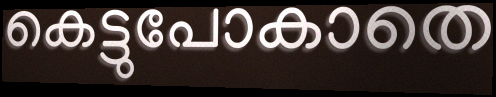
കെട്ടുപോകാതെ